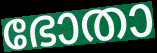
ഭോതാ